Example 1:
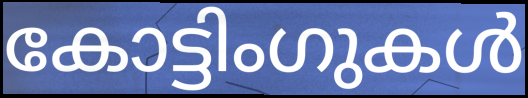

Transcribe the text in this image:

കോട്ടിംഗുകൾ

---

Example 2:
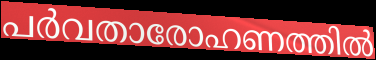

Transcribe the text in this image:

പർവതാരോഹണത്തിൽ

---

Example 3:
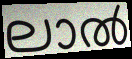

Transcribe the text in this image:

ലാൽ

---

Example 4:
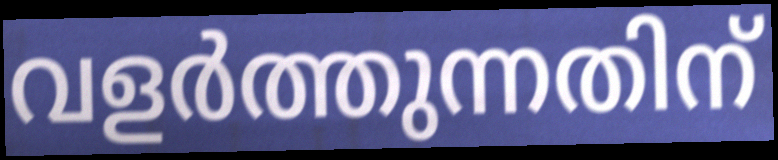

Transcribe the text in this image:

വളർത്തുന്നതിന്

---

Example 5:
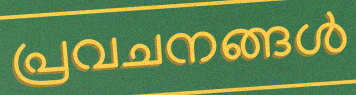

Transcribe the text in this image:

പ്രവചനങ്ങൾ